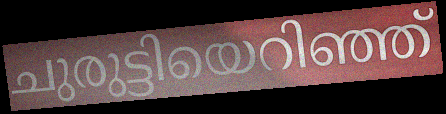
ചുരുട്ടിയെറിഞ്ഞ്